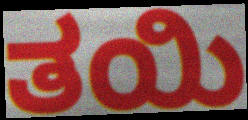
ತಯಿ